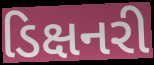
ડિક્ષનરી